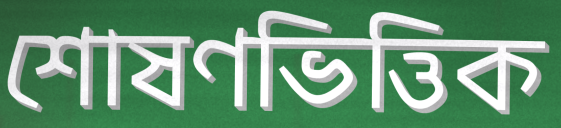
শোষণভিত্তিক